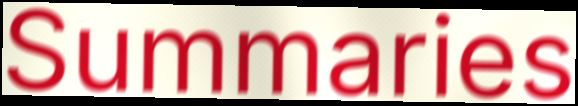
Summaries